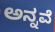
ಅನ್ನವೆ